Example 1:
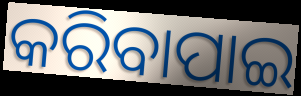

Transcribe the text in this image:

କରିବାପାଇ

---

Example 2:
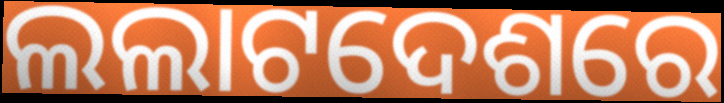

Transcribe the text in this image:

ଲଲାଟଦେଶରେ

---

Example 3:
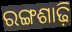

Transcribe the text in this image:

ରଙ୍ଗଶାଢ଼ି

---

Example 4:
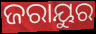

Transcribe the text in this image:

ଜରାୟୁର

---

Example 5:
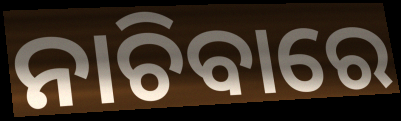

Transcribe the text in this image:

ନାଚିବାରେ